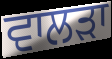
ਵਾਲੜਾ